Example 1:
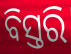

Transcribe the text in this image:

ବିସ୍ତରି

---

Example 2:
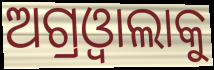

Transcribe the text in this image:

ଅଗ୍ରଓ୍ୱାଲାକୁ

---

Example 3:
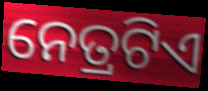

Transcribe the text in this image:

ନେତ୍ରଟିଏ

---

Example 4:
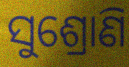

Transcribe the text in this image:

ସୁଶ୍ରୋଣି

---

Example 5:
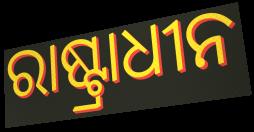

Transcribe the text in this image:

ରାଷ୍ଟ୍ରାଧୀନ